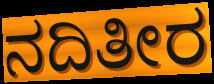
ನದಿತೀರ